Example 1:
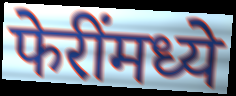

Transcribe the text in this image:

फेरींमध्ये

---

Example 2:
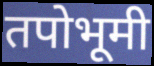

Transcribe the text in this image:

तपोभूमी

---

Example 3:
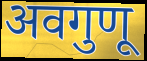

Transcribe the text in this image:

अवगुणू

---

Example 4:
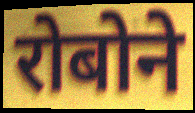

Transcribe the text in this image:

रोबोने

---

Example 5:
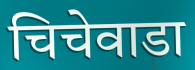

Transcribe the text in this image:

चिचेवाडा